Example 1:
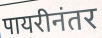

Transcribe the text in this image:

पायरीनंतर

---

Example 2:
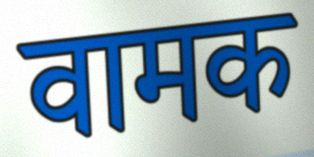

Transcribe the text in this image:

वामक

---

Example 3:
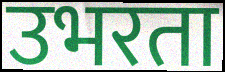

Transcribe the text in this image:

उभरता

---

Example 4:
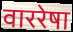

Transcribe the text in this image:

वाररेषा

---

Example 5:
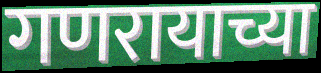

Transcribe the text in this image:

गणरायाच्या